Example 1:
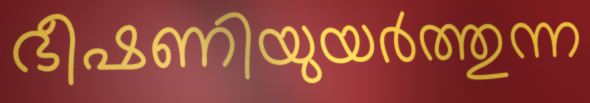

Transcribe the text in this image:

ഭീഷണിയുയർത്തുന്ന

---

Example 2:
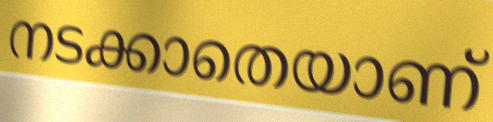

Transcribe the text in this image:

നടക്കാതെയാണ്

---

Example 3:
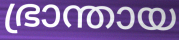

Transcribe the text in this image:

ഭ്രാന്തായ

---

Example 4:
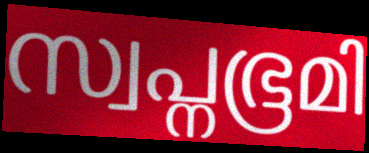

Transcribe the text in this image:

സ്വപ്നഭൂമി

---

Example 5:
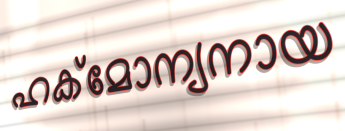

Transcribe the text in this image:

ഹക്മോന്യനായ